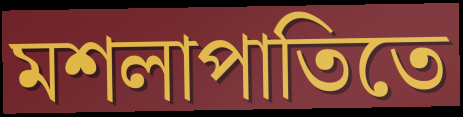
মশলাপাতিতে